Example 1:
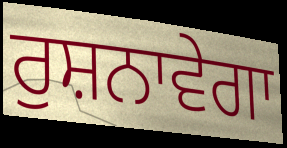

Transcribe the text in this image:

ਰੁਸ਼ਨਾਵੇਗਾ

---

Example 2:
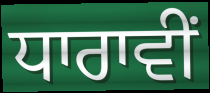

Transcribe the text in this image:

ਧਾਰਾਵੀਂ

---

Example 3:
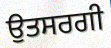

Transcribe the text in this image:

ਉਤਸਰਗੀ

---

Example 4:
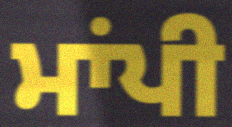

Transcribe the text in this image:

ਮਾਂਪੀ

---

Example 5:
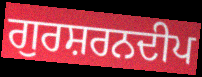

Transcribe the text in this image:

ਗੁਰਸ਼ਰਨਦੀਪ